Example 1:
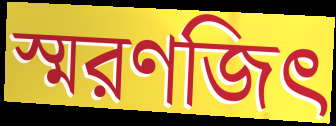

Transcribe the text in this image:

স্মরণজিৎ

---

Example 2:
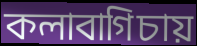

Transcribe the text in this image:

কলাবাগিচায়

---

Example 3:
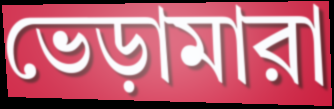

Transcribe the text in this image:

ভেড়ামারা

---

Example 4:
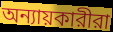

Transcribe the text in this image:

অন্যায়কারীরা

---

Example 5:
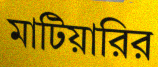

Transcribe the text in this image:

মাটিয়ারির